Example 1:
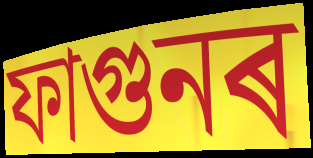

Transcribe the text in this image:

ফাগুনৰ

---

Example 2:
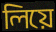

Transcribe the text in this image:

লিয়ে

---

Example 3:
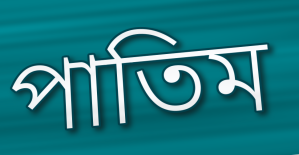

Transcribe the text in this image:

পাতিম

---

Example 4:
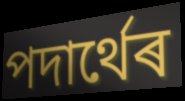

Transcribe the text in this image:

পদাৰ্থেৰ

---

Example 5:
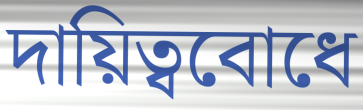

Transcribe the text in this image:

দায়িত্ববোধে